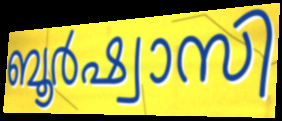
ബൂർഷ്വാസി